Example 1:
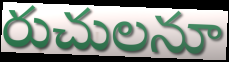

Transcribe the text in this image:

రుచులనూ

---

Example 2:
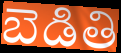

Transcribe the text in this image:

బెడితి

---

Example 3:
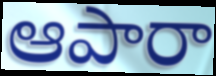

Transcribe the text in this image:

ఆపారా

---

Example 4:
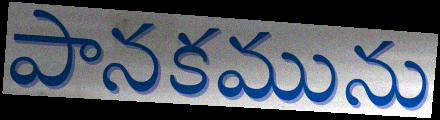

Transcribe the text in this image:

పానకమును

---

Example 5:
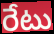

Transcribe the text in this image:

రేటు